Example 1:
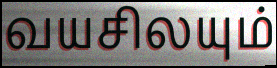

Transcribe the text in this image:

வயசிலயும்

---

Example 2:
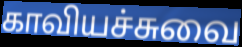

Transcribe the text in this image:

காவியச்சுவை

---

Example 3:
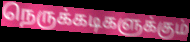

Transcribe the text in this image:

நெருக்கடிகளுக்கும்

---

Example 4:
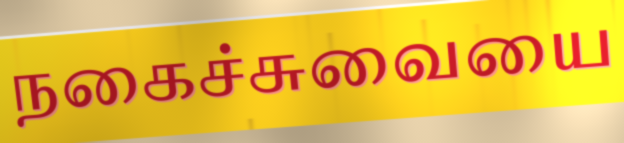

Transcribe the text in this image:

நகைச்சுவையை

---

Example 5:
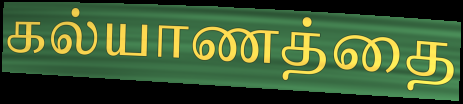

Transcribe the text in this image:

கல்யாணத்தை